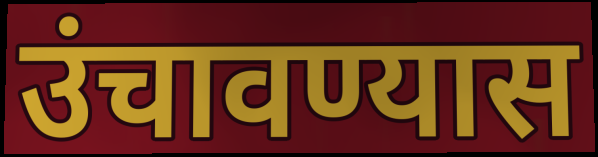
उंचावण्यास